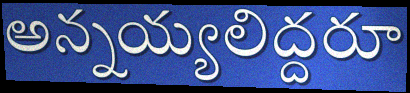
అన్నయ్యలిద్దరూ